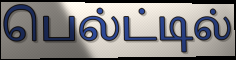
பெல்ட்டில்